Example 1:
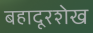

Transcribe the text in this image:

बहादूरशेख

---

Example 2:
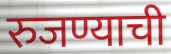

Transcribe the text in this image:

रुजण्याची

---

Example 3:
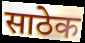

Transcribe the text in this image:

साठेक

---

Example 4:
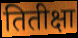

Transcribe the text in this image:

तितीक्षा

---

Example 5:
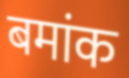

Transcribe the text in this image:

बमांक